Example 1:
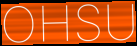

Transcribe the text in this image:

OHSU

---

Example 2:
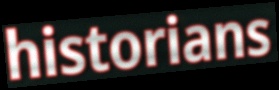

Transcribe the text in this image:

historians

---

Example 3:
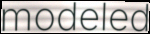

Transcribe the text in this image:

modeled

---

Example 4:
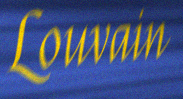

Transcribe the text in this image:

Louvain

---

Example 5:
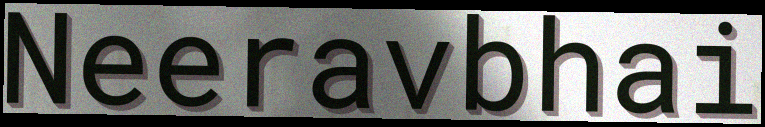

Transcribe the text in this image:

Neeravbhai